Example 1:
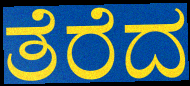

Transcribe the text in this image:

ತೆರೆದ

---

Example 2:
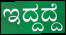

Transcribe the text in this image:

ಇದ್ದದ್ದೆ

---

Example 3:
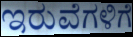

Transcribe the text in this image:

ಇರುವೆಗಳಿಗೆ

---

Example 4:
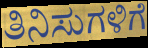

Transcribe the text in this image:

ತಿನಿಸುಗಳಿಗೆ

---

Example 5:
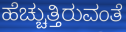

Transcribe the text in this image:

ಹೆಚ್ಚುತ್ತಿರುವಂತೆ